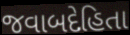
જવાબદેહિતા